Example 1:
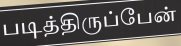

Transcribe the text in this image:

படித்திருப்பேன்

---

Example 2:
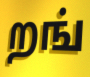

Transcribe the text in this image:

றங்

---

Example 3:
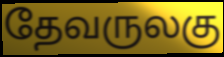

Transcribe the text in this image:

தேவருலகு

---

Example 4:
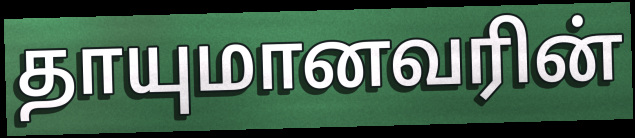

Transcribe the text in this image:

தாயுமானவரின்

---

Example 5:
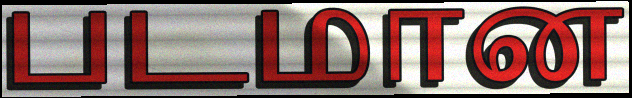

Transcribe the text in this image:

படமான